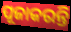
ପୂଜାକରନ୍ତି